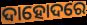
ଦାହୋଦରେ